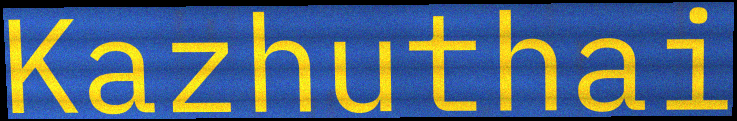
Kazhuthai